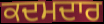
ਕਦਮਦਾਰ